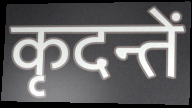
कृदन्तें